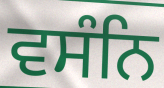
ਵਸੰਨਿ